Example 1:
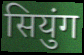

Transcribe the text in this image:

सियुंग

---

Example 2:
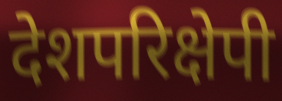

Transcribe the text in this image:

देशपरिक्षेपी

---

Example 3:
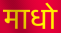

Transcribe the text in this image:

माधो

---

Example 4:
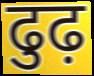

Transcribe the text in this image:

ढुढ़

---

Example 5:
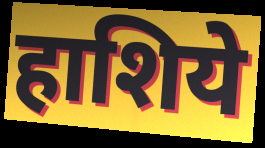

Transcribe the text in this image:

हाशिये